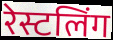
रेस्टलिंग